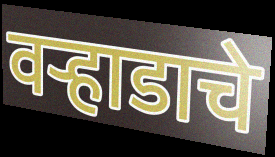
वऱ्हाडाचे